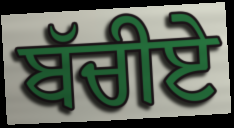
ਬੱਚੀਏ